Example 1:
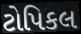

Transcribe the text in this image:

ટોપિકલ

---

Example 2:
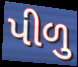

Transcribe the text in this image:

પીળુ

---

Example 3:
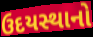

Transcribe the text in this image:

ઉદયસ્થાનો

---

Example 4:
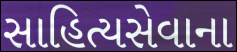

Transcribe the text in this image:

સાહિત્યસેવાના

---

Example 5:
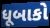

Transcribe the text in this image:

ધૂબાકો